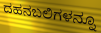
ದಹನಬಲಿಗಳನ್ನೂ